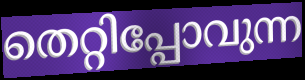
തെറ്റിപ്പോവുന്ന